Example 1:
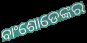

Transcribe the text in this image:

ବାଂଶୋଡେଙ୍କର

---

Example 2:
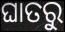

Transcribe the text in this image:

ଘାତରୁ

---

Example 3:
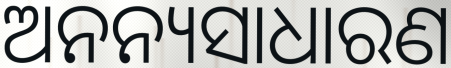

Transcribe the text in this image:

ଅନନ୍ୟସାଧାରଣ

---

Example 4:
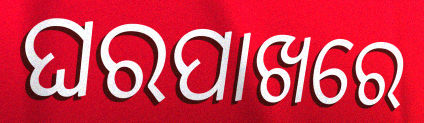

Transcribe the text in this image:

ଘରପାଖରେ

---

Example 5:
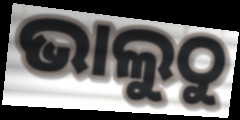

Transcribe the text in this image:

ଭାଲୁଠୁ